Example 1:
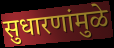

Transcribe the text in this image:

सुधारणांमुळे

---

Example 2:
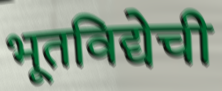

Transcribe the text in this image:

भूतविद्येची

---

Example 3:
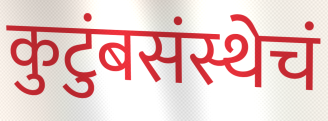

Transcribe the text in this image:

कुटुंबसंस्थेचं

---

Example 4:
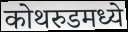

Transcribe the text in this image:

कोथरुडमध्ये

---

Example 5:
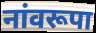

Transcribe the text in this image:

नांवरूपा